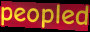
peopled